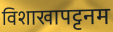
विशाखापट्टनम